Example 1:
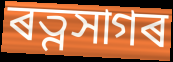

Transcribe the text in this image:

ৰত্নসাগৰ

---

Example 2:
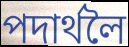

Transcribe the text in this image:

পদাৰ্থলৈ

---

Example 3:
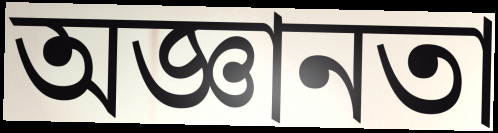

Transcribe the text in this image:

অজ্ঞানতা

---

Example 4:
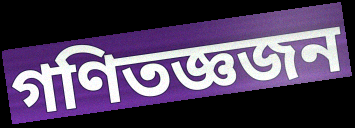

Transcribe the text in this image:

গণিতজ্ঞজন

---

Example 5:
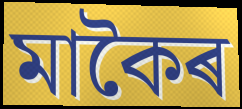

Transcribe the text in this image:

মাকৈৰ